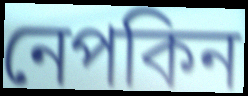
নেপকিন